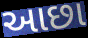
આછા